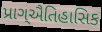
પ્રાગ્ઐતિહાસિક